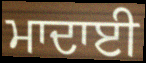
ਮਾਦਾਈ